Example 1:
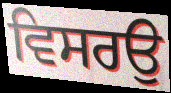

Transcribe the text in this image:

ਵਿਸਰਉ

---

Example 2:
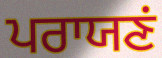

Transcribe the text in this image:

ਪਰਾਯਣਂ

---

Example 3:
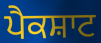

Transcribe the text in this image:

ਪੈਕਸ਼ਾਟ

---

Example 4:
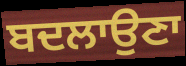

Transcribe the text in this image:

ਬਦਲਾਉਣਾ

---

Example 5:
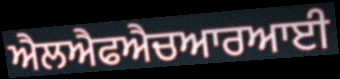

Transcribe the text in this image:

ਐਲਐਫਐਚਆਰਆਈ